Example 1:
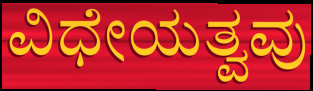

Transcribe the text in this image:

ವಿಧೇಯತ್ವವು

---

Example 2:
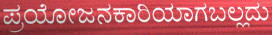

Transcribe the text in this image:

ಪ್ರಯೋಜನಕಾರಿಯಾಗಬಲ್ಲದು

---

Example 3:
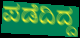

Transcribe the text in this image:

ಪಡೆದಿದ್ದ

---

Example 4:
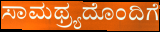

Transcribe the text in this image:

ಸಾಮಥ್ರ್ಯದೊಂದಿಗೆ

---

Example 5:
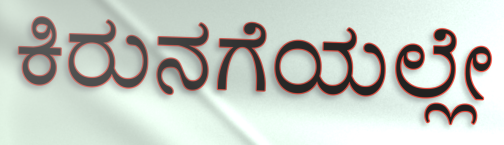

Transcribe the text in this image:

ಕಿರುನಗೆಯಲ್ಲೇ